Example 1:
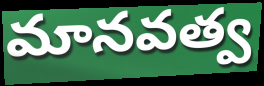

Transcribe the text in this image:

మానవత్వ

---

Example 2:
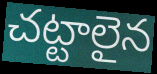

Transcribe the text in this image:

చట్టాలైన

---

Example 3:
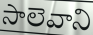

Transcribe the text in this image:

సాలెవాని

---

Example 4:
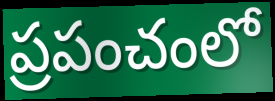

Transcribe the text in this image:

ప్రపంచంలో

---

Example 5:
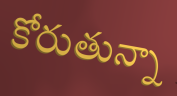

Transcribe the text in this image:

కోరుతున్నా